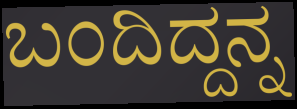
ಬಂದಿದ್ದನ್ನ